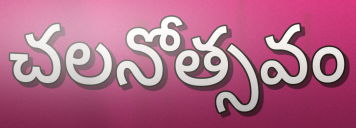
చలనోత్సవం